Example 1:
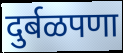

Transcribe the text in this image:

दुर्बळपणा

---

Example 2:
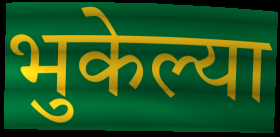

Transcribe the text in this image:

भुकेल्या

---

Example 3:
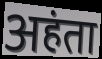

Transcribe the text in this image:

अहंता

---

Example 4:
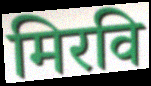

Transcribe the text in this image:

मिरवि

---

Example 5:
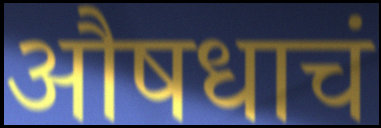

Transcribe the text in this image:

औषधाचं